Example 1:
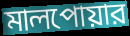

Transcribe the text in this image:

মালপোয়ার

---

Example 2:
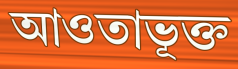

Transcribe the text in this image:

আওতাভূক্ত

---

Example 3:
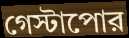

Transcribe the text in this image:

গেস্টাপোর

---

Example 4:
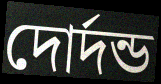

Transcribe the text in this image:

দোর্দন্ড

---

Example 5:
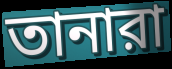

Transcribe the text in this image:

তানারা